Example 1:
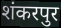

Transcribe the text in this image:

शंकरपुर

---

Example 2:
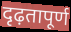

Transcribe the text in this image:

दृढ़तापूर्ण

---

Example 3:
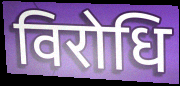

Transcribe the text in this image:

विरोधि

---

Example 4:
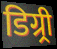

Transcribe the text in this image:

डिग्र्री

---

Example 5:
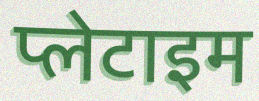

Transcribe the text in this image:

प्लेटाइम